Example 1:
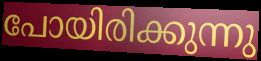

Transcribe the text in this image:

പോയിരിക്കുന്നു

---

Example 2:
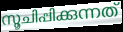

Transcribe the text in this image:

സൂചിപ്പിക്കുന്നത്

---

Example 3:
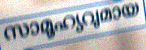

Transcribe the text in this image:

സാമൂഹ്യവുമായ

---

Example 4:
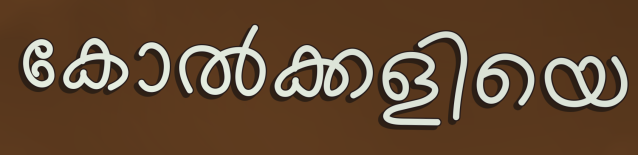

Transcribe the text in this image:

കോൽക്കളിയെ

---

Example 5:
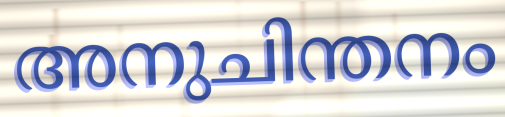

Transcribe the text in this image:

അനുചിന്തനം